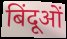
बिंदूओं